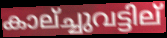
കാല്ച്ചുവട്ടില്